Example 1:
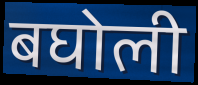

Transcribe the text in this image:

बघोली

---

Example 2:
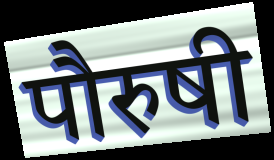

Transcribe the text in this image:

पौरुषी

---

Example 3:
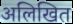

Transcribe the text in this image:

अलिखित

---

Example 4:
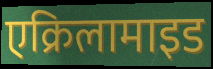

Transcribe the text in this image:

एक्रिलामाइड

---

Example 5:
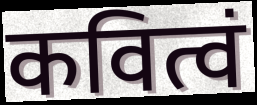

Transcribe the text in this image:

कवित्वं